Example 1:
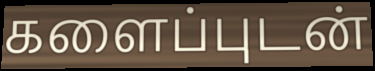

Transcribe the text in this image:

களைப்புடன்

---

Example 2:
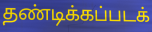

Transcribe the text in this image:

தண்டிக்கப்படக்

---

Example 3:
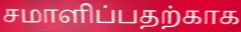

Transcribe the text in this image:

சமாளிப்பதற்காக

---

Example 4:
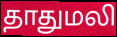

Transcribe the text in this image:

தாதுமலி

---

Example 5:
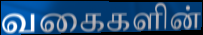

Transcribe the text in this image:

வகைகளின்